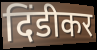
दिंडीकर